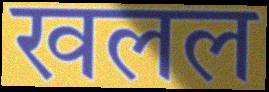
खलल